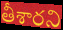
తీశారని